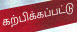
கற்பிக்கப்பட்டு